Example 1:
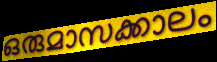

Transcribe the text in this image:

ഒരുമാസക്കാലം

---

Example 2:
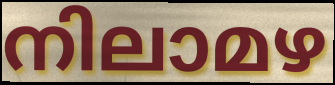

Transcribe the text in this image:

നിലാമഴ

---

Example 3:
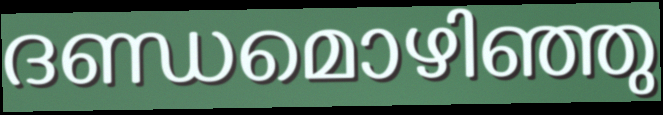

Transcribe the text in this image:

ദണ്ഡമൊഴിഞ്ഞു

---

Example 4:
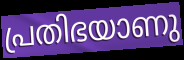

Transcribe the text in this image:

പ്രതിഭയാണു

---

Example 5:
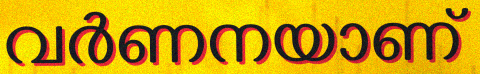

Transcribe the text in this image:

വർണനയാണ്